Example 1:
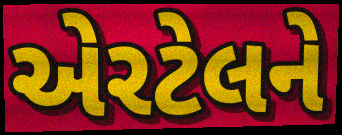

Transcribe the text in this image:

એરટેલને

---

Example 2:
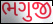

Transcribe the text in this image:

ભગુજી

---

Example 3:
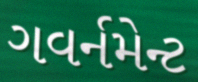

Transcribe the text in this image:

ગવર્નમેન્ટ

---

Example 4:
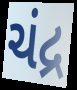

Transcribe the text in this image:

ચંદ્ર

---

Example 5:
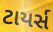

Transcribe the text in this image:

ટાયર્સ